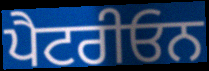
ਪੈਟਰੀਓਨ